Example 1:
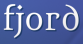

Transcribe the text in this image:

fjord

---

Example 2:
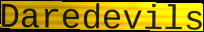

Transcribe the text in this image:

Daredevils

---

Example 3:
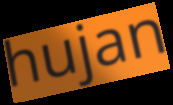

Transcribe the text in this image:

hujan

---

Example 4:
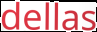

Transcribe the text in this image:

dellas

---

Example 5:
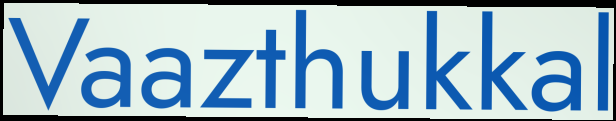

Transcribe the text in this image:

Vaazthukkal